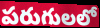
పరుగులలో